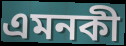
এমনকী